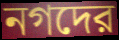
নগদের